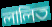
লালিত